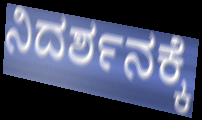
ನಿದರ್ಶನಕ್ಕೆ